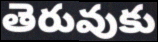
తెరువుకు